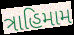
ત્રાહિમામ